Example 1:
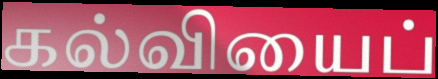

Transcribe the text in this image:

கல்வியைப்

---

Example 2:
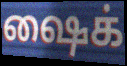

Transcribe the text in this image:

ஷைக்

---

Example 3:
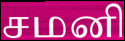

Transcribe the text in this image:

சமனி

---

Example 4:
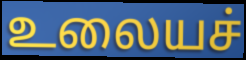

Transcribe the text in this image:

உலையச்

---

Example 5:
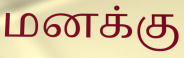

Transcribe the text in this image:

மனக்கு